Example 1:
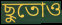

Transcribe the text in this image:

ছুতোও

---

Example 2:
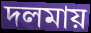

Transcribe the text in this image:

দলমায়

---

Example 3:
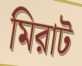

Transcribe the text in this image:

মিরাট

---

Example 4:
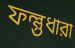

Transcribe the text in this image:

ফল্গুধারা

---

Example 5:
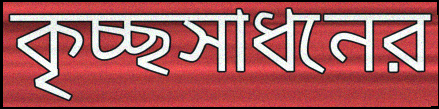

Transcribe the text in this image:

কৃচ্ছসাধনের